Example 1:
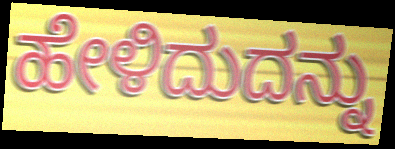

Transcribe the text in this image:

ಹೇಳಿದುದನ್ನು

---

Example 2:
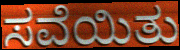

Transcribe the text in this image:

ಸವೆಯಿತು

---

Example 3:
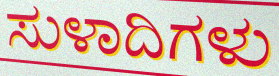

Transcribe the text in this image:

ಸುಳಾದಿಗಳು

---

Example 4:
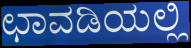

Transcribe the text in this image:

ಛಾವಡಿಯಲ್ಲಿ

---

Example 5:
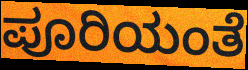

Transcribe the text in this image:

ಪೂರಿಯಂತೆ